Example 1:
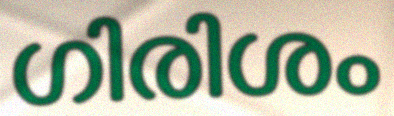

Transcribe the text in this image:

ഗിരിശം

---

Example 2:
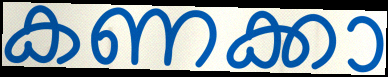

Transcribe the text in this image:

കണക്കാ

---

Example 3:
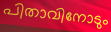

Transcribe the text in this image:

പിതാവിനോടും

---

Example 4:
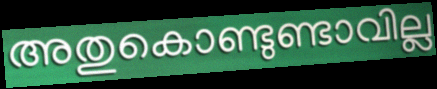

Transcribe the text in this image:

അതുകൊണ്ടുണ്ടാവില്ല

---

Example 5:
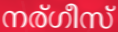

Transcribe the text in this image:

നര്ഗീസ്